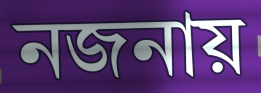
নজনায়